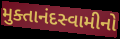
મુક્તાનંદસ્વામીનો